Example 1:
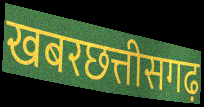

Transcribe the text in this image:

खबरछत्तीसगढ़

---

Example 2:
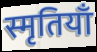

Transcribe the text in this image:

स्मृतियाँ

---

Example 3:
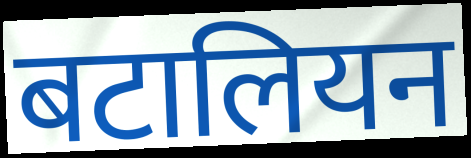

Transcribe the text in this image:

बटालियन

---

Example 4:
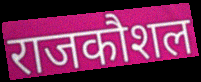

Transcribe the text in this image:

राजकौशल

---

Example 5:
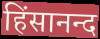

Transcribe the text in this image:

हिंसानन्द